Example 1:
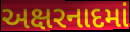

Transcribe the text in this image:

અક્ષરનાદમાં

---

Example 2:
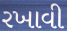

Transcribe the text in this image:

રખાવી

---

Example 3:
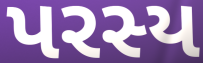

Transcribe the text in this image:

પરસ્ય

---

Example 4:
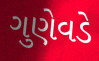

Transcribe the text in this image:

ગુણેવડે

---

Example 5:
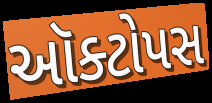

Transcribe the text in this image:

ઑક્ટોપસ